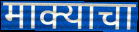
माक्याचा